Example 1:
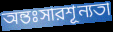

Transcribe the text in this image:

অন্তঃসারশূন্যতা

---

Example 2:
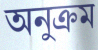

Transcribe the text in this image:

অনুক্রম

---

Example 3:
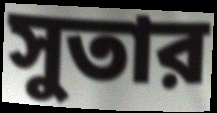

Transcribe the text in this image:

সুতার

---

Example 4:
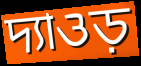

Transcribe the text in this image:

দ্যাওড়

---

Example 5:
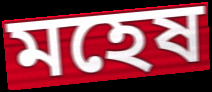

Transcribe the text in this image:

মহেষ